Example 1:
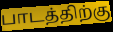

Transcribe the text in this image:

பாடத்திற்கு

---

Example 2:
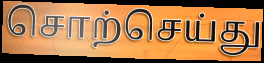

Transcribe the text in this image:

சொற்செய்து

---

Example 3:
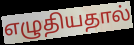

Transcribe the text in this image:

எழுதியதால்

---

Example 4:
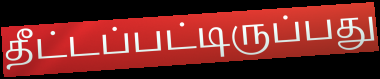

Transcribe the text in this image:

தீட்டப்பட்டிருப்பது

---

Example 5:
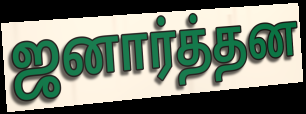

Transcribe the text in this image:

ஜனார்த்தன